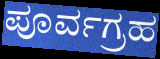
ಪೂರ್ವಗ್ರಹ